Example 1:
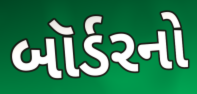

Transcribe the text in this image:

બૉર્ડરનો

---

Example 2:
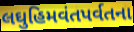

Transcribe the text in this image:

લઘુહિમવંતપર્વતના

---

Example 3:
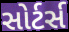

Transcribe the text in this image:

સોર્ટર્સ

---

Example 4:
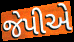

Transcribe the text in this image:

જેપીએ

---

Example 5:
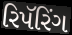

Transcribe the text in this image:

રિપૅરિંગ